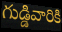
గుడ్డివారికి